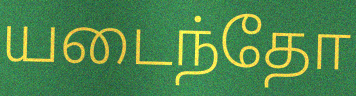
யடைந்தோ